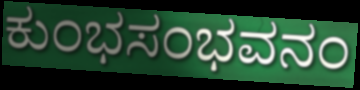
ಕುಂಭಸಂಭವನಂ